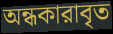
অন্ধকারাবৃত